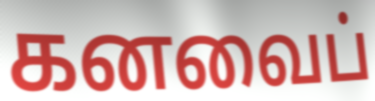
கனவைப்